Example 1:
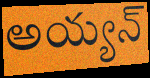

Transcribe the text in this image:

అయ్యన్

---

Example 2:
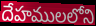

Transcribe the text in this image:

దేహములలోని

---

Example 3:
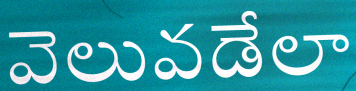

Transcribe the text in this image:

వెలువడేలా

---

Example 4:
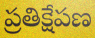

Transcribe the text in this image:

ప్రతిక్షేపణ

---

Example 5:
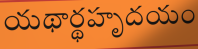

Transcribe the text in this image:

యథార్థహృదయం